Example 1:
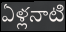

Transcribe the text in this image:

ఏళ్లనాటి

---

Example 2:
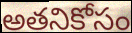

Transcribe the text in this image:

అతనికోసం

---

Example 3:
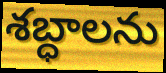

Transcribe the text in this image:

శబ్ధాలను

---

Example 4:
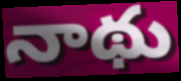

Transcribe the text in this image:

నాథు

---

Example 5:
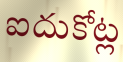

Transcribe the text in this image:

ఐదుకోట్ల